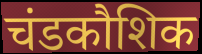
चंडकौशिक